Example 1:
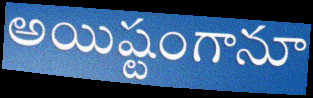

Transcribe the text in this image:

అయిష్టంగానూ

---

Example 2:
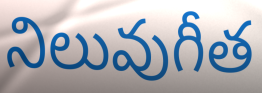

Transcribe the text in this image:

నిలువుగీత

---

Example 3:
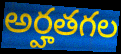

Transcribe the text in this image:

అర్హతగల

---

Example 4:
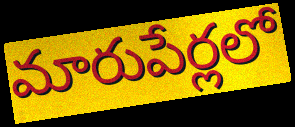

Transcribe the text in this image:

మారుపేర్లలో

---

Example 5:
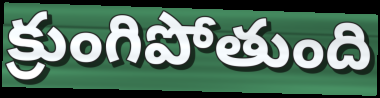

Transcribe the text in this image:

క్రుంగిపోతుంది